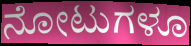
ನೋಟುಗಳೂ